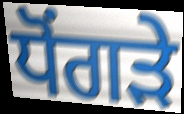
ਧੋਂਗੜੇ